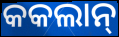
କକଲାନ୍